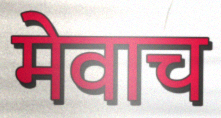
मेवाच